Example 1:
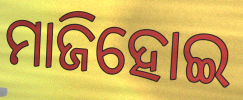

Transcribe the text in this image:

ମାଜିହୋଇ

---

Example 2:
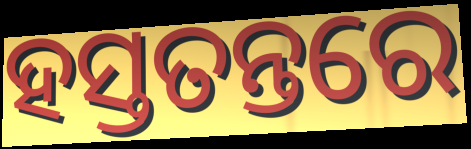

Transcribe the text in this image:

ହସ୍ତତନ୍ତରେ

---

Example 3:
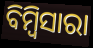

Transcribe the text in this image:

ବିମ୍ବିସାରା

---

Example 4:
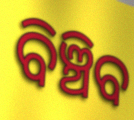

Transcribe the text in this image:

ବିଞ୍ଚିବ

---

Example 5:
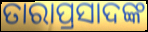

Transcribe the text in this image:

ତାରାପ୍ରସାଦଙ୍କ